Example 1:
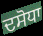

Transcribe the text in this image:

ਦਸੋਧਾ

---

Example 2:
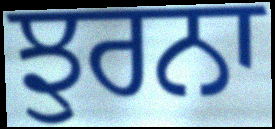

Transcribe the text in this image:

ਝੁਰਨਾ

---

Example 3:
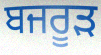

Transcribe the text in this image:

ਬਜਰੂੜ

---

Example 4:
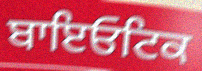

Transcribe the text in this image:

ਬਾਇਓਟਿਕ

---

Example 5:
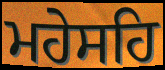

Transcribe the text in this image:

ਮਹੇਸਹਿ